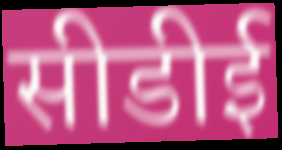
सीडीई